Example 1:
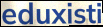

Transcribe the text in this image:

eduxisti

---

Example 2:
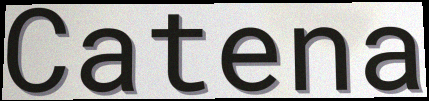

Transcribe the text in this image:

Catena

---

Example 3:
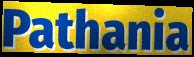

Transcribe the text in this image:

Pathania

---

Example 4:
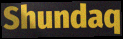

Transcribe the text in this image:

Shundaq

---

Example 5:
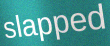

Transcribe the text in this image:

slapped